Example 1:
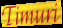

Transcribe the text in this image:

Timuri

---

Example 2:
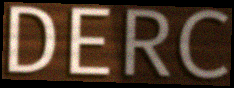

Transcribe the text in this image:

DERC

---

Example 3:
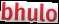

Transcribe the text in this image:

bhulo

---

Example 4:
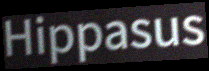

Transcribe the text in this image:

Hippasus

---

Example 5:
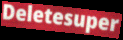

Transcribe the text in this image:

Deletesuper